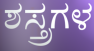
ಶಸ್ತ್ರಗಳ